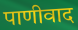
पाणीवाद